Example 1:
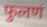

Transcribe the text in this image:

फुलणं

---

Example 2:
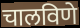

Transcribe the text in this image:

चालविणे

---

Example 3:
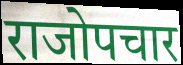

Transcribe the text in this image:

राजोपचार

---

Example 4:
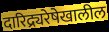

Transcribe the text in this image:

दारिद्र्यरेषेखालील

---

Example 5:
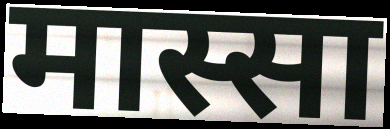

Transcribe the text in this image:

मास्सा